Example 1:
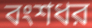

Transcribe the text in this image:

বংশধর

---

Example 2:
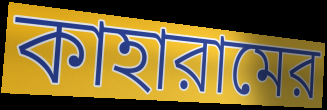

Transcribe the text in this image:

কাহারামের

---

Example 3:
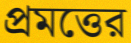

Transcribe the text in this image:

প্রমত্তের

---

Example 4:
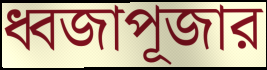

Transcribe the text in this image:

ধ্বজাপূজার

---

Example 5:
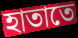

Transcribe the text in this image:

হাতাতে